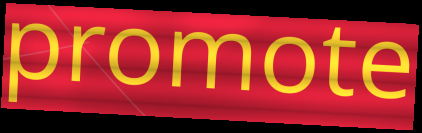
promote